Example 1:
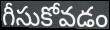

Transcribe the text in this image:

గీసుకోవడం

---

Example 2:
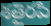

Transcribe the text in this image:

శతైరపి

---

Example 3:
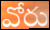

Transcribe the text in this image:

వోరు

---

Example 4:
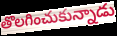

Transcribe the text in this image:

తొలగించుకున్నాడు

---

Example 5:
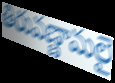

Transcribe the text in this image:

తిరువణ్ణామలై